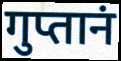
गुप्तानं